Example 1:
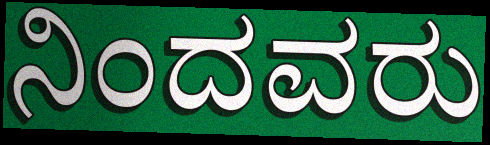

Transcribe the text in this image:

ನಿಂದವರು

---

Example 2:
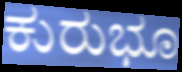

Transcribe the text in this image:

ಕುರುಭೂ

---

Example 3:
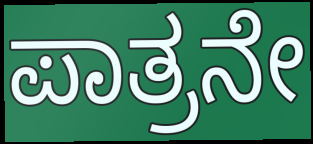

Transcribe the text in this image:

ಪಾತ್ರನೇ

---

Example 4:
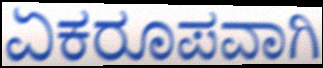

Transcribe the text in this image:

ಏಕರೂಪವಾಗಿ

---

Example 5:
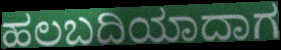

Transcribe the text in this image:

ಹಲಬದಿಯಾದಾಗ